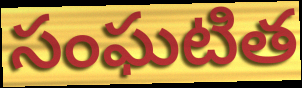
సంఘటిత